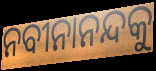
ନବୀନାନନ୍ଦକୁ